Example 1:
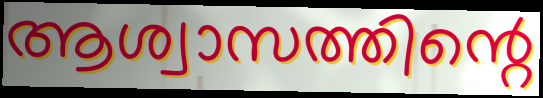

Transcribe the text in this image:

ആശ്വാസത്തിന്റെ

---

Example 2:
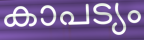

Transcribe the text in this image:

കാപട്യം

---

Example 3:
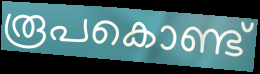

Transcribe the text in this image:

രൂപകൊണ്ട്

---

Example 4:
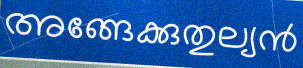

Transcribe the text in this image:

അങ്ങേക്കുതുല്യൻ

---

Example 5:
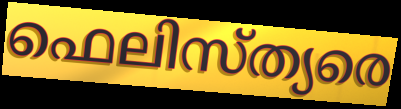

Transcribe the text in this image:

ഫെലിസ്ത്യരെ